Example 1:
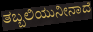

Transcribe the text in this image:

ತಬ್ಬಲಿಯುನೀನಾದೆ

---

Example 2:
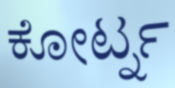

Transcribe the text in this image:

ಕೋರ್ಟ್ನ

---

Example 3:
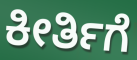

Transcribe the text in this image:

ಕೀರ್ತಿಗೆ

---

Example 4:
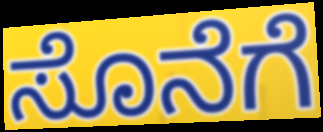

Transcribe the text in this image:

ಸೊನೆಗೆ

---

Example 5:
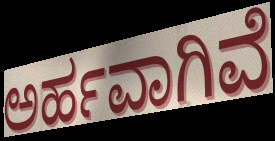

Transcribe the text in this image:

ಅರ್ಹವಾಗಿವೆ